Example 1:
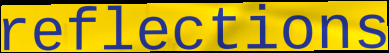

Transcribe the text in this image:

reflections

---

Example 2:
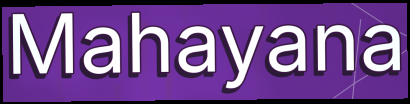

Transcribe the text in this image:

Mahayana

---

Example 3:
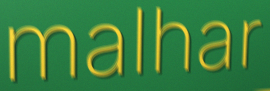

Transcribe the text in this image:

malhar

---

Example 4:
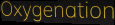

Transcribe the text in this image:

Oxygenation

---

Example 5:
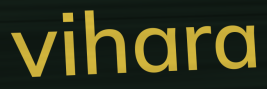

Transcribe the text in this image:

vihara